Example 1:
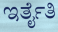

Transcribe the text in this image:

ಇರ್ತೈತಿ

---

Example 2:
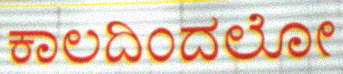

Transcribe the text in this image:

ಕಾಲದಿಂದಲೋ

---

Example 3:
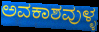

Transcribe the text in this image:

ಅವಕಾಶವುಳ್ಳ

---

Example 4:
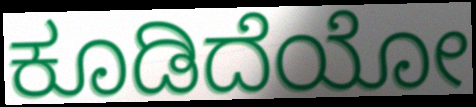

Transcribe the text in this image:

ಕೂಡಿದೆಯೋ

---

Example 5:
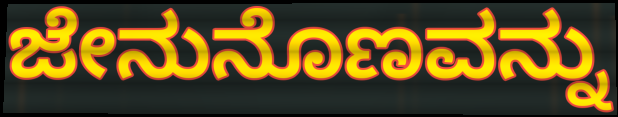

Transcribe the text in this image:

ಜೇನುನೊಣವನ್ನು